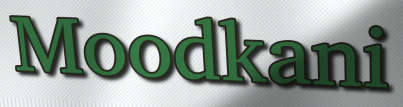
Moodkani